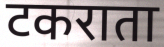
टकराता